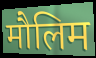
मौलिम